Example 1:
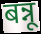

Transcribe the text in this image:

बन्नू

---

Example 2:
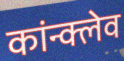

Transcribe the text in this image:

कांन्क्लेव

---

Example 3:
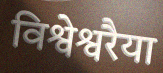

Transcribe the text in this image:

विश्वेश्वरैया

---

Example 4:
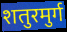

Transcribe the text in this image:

शतुरमुर्ग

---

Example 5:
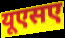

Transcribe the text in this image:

यूएसए